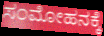
ಸಂಮೋಹನಕ್ಕೆ